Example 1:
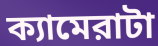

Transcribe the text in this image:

ক্যামেরাটা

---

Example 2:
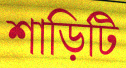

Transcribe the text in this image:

শাড়িটি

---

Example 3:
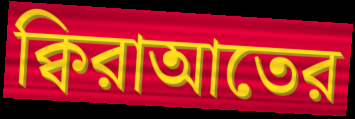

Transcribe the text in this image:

ক্বিরাআতের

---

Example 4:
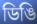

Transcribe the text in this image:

ডিঙি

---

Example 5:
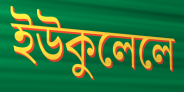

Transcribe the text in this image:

ইউকুলেলে